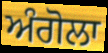
ਅੰਗੋਲਾ